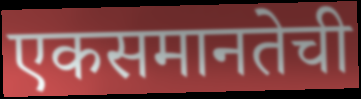
एकसमानतेची